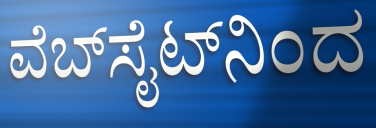
ವೆಬ್‍ಸೈಟ್‍ನಿಂದ